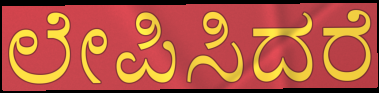
ಲೇಪಿಸಿದರೆ